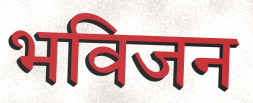
भविजन